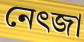
নেৎজা